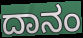
ದಾನಂ